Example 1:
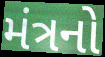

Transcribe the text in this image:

મંત્રનો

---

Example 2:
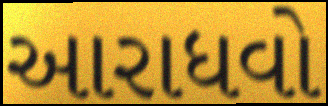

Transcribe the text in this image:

આરાધવો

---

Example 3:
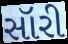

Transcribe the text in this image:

સૉરી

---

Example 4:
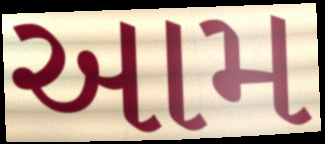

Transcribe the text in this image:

આમ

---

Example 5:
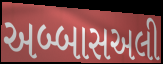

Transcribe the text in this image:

અબ્બાસઅલી